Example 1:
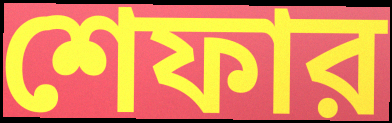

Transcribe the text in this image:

শেফার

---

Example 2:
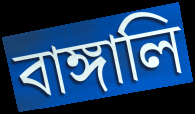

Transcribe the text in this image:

বাঙ্গালি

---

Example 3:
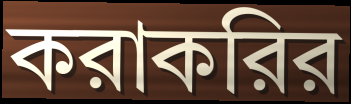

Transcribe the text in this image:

করাকরির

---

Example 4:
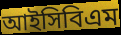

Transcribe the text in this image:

আইসিবিএম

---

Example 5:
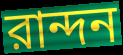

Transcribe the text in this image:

রান্দন